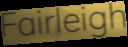
Fairleigh